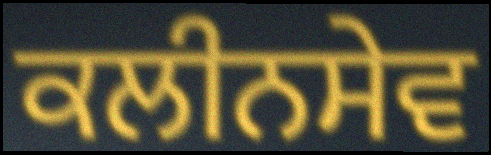
ਕਲੀਨਸੇਵ